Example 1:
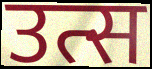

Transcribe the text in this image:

उत्स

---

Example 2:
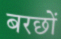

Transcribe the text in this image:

बरछों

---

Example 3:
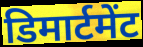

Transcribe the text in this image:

डिमार्टमेंट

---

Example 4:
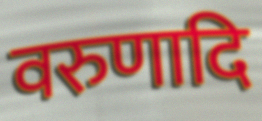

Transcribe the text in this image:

वरुणादि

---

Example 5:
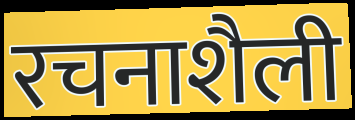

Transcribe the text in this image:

रचनाशैली